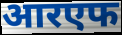
आरएफ